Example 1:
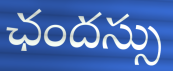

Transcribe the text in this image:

ఛందస్సు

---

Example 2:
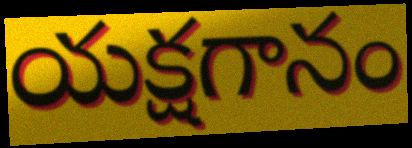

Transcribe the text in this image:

యక్షగానం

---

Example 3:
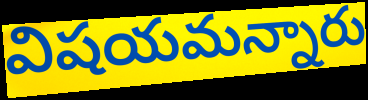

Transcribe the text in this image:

విషయమన్నారు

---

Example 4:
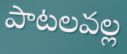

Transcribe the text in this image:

పాటలవల్ల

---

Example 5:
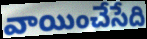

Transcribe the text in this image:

వాయించేసేది